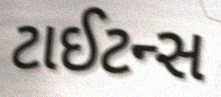
ટાઈટન્સ